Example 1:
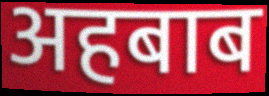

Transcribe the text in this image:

अहबाब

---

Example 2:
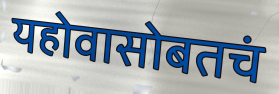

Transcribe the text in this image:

यहोवासोबतचं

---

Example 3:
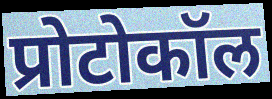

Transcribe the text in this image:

प्रोटोकॉल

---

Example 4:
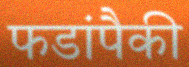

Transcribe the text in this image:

फडांपैकी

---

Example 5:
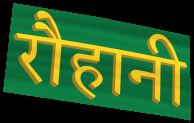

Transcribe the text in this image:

रौहानी